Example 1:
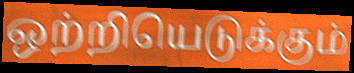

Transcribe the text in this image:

ஒற்றியெடுக்கும்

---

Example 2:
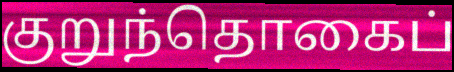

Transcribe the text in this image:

குறுந்தொகைப்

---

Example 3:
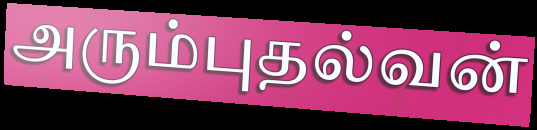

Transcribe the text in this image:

அரும்புதல்வன்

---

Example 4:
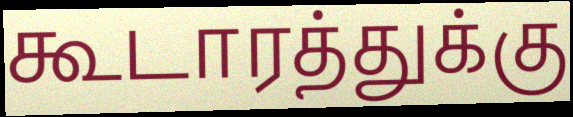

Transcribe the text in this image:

கூடாரத்துக்கு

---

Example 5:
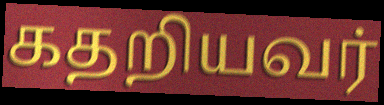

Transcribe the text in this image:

கதறியவர்